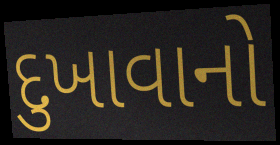
દુખાવાનો